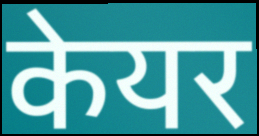
केयर